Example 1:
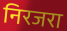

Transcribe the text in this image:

निरजरा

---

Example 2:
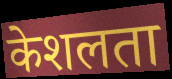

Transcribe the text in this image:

केशलता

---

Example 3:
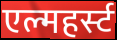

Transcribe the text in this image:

एल्महर्स्ट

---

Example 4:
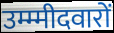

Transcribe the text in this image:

उम्म्मीदवारों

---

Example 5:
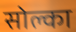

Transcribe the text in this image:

सोल्का